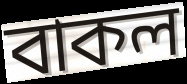
বাকল